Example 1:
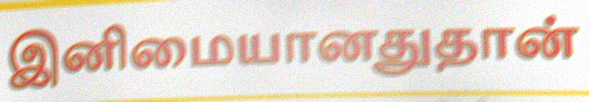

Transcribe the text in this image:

இனிமையானதுதான்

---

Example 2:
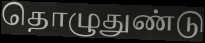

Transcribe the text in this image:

தொழுதுண்டு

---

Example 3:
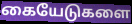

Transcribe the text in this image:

கையேடுகளை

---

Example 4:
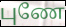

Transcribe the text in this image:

புணே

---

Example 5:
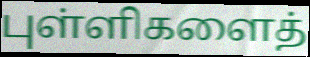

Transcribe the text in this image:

புள்ளிகளைத்